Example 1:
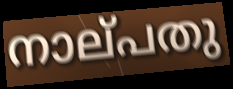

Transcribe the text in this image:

നാല്‌പതു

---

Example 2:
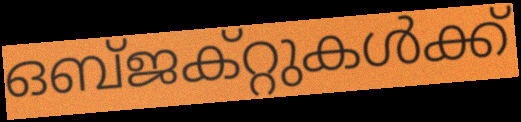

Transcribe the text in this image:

ഒബ്ജക്റ്റുകൾക്ക്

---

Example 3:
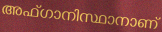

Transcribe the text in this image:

അഫ്ഗാനിസ്ഥാനാണ്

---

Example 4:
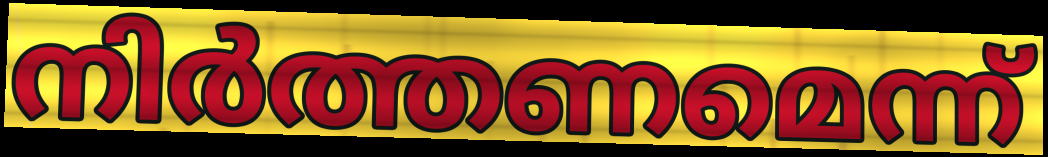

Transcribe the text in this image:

നിർത്തണമെന്ന്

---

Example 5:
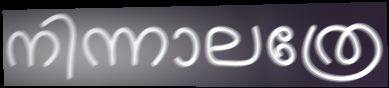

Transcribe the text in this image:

നിന്നാലത്രേ